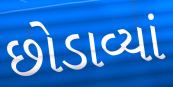
છોડાવ્યાં